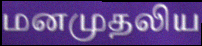
மனமுதலிய